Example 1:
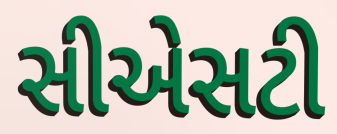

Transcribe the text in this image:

સીએસટી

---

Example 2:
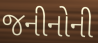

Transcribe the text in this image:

જનીનોની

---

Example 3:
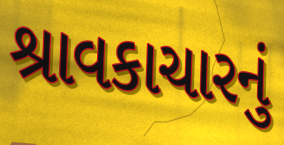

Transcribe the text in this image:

શ્રાવકાચારનું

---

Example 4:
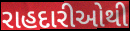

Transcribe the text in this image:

રાહદારીઓથી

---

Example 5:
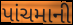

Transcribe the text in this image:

પાંચમાની